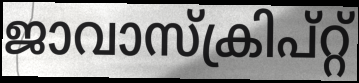
ജാവാസ്ക്രിപ്റ്റ്